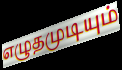
எழுதமுடியும்